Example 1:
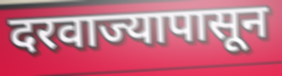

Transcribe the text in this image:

दरवाज्यापासून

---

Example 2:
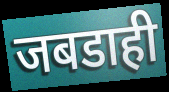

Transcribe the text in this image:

जबडाही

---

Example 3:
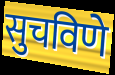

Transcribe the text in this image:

सुचविणे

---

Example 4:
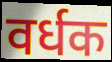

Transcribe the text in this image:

वर्धक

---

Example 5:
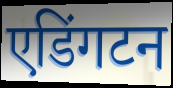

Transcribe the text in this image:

एडिंगटन